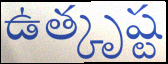
ఉత్కృష్ట